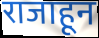
राजाहून